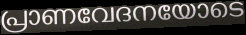
പ്രാണവേദനയോടെ